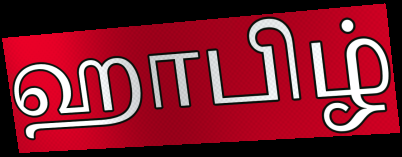
ஹாபிழ்